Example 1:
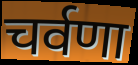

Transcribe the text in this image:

चर्वणा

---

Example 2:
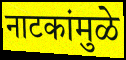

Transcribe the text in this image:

नाटकांमुळे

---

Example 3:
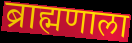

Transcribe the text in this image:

ब्राह्मणाला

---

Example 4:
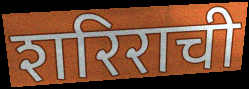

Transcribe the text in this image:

शरिराची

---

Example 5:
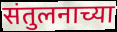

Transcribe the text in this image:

संतुलनाच्या